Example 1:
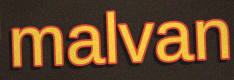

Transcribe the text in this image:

malvan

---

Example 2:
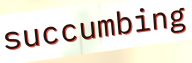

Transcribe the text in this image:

succumbing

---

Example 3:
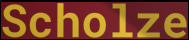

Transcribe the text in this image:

Scholze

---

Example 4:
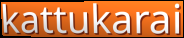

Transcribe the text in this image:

kattukarai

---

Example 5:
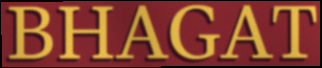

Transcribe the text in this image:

BHAGAT